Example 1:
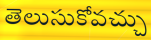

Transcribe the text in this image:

తెలుసుకోవచ్చు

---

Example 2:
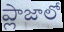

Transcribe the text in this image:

ప్లాజాలో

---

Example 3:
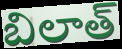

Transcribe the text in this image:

బిలాత్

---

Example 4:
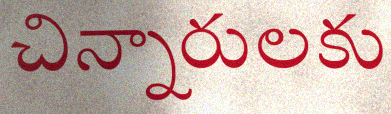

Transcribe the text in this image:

చిన్నారులకు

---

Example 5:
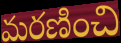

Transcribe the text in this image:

మరణించి